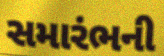
સમારંભની